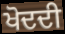
ਖੋਦਦੀ